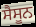
ਸੈਸੂਨ